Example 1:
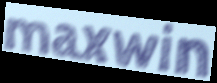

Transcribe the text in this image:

maxwin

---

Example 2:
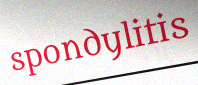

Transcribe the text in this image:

spondylitis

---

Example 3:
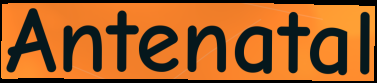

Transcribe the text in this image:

Antenatal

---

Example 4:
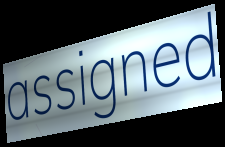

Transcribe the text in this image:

assigned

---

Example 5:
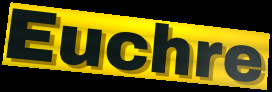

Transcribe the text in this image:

Euchre